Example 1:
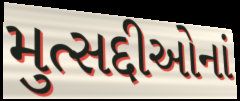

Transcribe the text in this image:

મુત્સદ્દીઓનાં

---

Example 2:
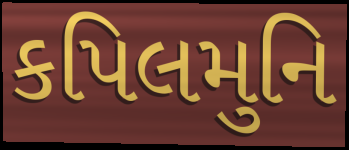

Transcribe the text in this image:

કપિલમુનિ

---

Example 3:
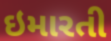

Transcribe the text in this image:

ઇમારતી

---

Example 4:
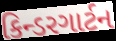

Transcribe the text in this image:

કિન્ડરગાર્ટન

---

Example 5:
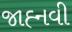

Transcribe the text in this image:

જાહ્‍નવી